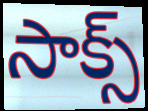
సాక్స్